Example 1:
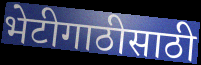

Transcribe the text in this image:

भेटीगाठीसाठी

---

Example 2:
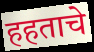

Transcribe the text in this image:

हहताचे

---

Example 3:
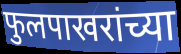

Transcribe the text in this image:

फुलपाखरांच्या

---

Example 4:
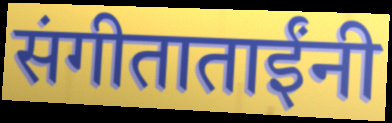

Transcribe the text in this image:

संगीताताईंनी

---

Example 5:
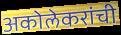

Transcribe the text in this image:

अकोलेकरांची